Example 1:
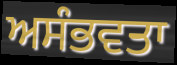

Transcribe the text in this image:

ਅਸੰਭਵਤਾ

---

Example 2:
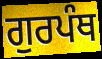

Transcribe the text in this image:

ਗੁਰਪੰਥ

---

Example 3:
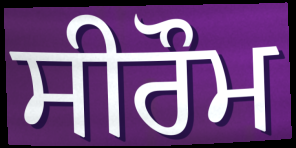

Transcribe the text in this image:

ਸੀਰੌਮ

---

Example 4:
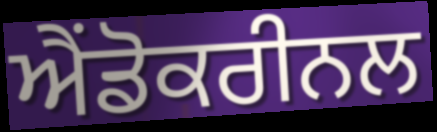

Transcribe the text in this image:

ਐਂਡੋਕਰੀਨਲ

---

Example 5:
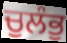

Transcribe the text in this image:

ਚੁਲੰਭੁ